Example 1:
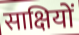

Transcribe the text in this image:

साक्षियों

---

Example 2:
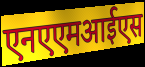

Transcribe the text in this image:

एनएएमआईएस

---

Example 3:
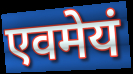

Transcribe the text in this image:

एवमेयं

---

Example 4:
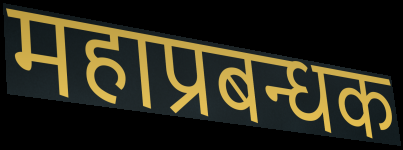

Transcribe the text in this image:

महाप्रबन्धक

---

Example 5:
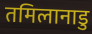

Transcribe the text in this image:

तमिलानाडु